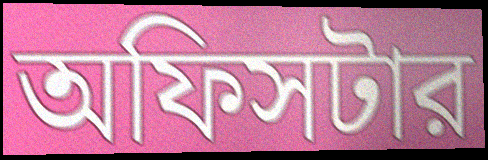
অফিসটার